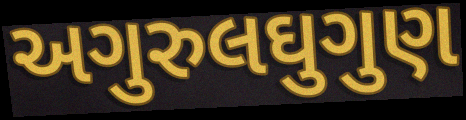
અગુરુલઘુગુણ